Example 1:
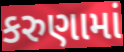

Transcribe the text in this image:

કરુણામાં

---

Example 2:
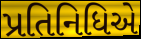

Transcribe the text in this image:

પ્રતિનિધિએ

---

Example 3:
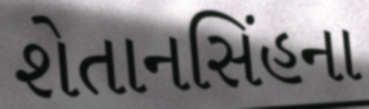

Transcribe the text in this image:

શેતાનસિંહના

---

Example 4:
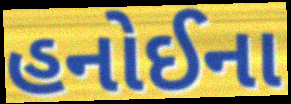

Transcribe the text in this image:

હનોઈના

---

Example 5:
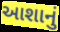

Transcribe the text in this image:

આશાનું